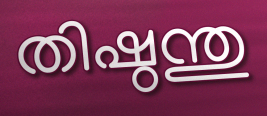
തിഷ്ഠന്തു